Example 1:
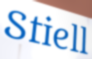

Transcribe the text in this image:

Stiell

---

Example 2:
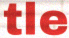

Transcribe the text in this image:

tle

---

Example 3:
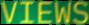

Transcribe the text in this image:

VIEWS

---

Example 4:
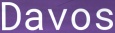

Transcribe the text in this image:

Davos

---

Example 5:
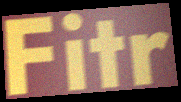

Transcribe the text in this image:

Fitr